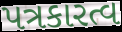
પત્રકારત્વ